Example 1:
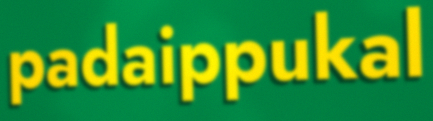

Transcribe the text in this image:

padaippukal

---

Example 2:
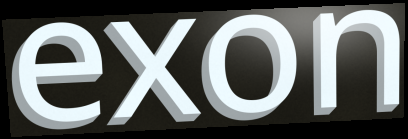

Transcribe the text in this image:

exon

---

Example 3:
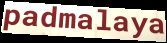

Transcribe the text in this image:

padmalaya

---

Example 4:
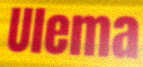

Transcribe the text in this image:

Ulema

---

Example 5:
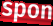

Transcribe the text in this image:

spon